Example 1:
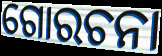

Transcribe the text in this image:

ଗୋରଚନା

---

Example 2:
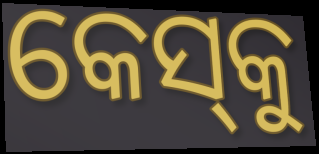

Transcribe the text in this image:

କେସ୍‌କୁ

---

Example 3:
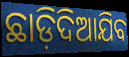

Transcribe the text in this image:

ଛାଡ଼ିଦିଆଯିବ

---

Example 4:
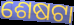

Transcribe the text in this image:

ଶେଷଟା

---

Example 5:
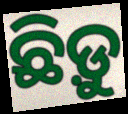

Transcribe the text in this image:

ଛିଡ଼ୁ